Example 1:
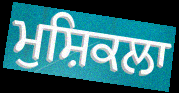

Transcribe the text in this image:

ਮੁਸ਼ਿਕਲਾ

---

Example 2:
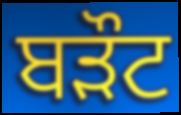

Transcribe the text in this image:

ਬੜੌਟ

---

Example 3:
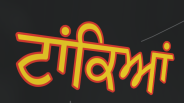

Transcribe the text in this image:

ਟਾਂਕਿਆਂ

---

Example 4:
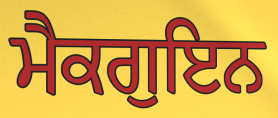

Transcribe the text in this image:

ਮੈਕਗੁਇਨ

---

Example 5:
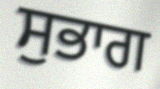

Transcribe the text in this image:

ਸੁਭਾਗ